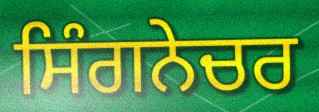
ਸਿੰਗਨੇਚਰ